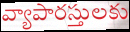
వ్యాపారస్తులకు